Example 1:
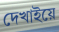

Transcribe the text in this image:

দেখাইয়ে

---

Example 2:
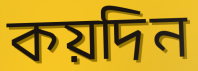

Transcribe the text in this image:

কয়দিন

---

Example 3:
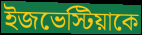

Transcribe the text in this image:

ইজভেস্টিয়াকে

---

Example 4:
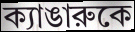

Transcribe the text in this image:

ক্যাঙারুকে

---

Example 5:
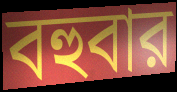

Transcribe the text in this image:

বহুবার